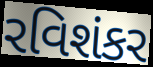
રવિશંકર